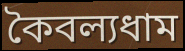
কৈবল্যধাম